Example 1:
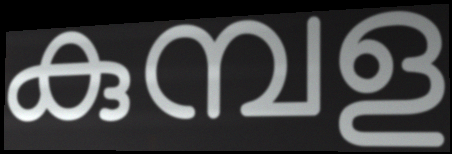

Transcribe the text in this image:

കുമ്പള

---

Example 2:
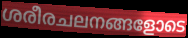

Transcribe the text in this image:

ശരീരചലനങ്ങളോടെ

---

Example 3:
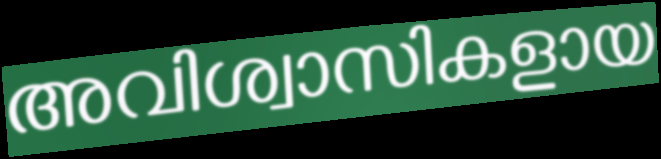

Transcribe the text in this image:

അവിശ്വാസികളായ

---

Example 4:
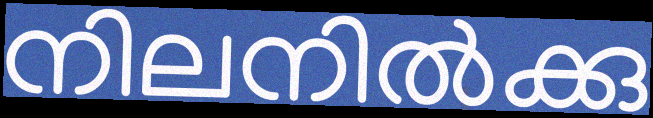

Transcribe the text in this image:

നിലനിൽക്കു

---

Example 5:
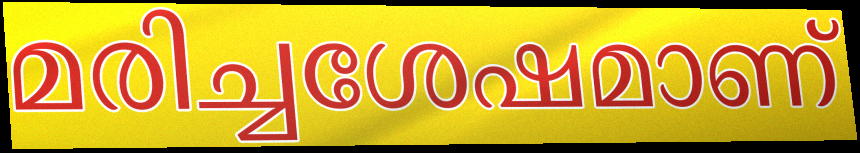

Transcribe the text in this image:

മരിച്ചശേഷമാണ്